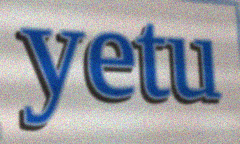
yetu